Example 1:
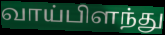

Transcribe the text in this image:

வாய்பிளந்து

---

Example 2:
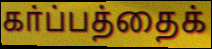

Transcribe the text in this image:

கர்ப்பத்தைக்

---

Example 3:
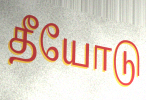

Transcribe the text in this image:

தீயோடு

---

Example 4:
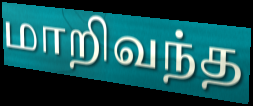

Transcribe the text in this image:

மாறிவந்த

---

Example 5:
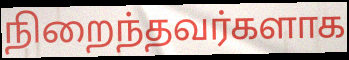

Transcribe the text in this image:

நிறைந்தவர்களாக